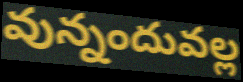
వున్నందువల్ల